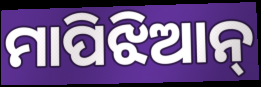
ମାପିଝିଆନ୍